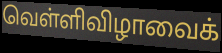
வெள்ளிவிழாவைக்